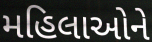
મહિલાઓને